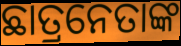
ଛାତ୍ରନେତାଙ୍କ